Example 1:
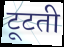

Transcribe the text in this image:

टूटती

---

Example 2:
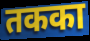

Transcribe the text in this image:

तकका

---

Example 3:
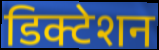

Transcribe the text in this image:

डिक्टेशन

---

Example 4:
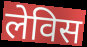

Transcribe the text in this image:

लेविस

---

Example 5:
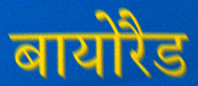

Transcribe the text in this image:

बायोरैड